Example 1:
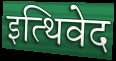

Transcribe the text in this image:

इत्थिवेद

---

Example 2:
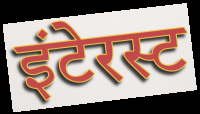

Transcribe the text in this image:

इंटेरस्ट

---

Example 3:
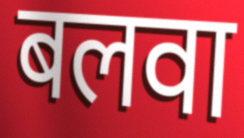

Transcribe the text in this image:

बलवा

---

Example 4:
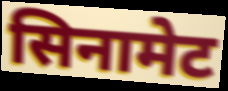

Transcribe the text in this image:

सिनामेट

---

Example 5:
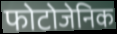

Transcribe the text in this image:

फोटोजेनिक